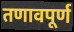
तणावपूर्ण